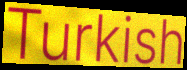
Turkish